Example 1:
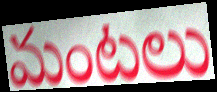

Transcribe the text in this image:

మంటలు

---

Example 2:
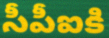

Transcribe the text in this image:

సీపీఐకి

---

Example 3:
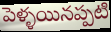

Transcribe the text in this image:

పెళ్ళయినప్పటి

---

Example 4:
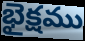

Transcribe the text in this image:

భైక్షము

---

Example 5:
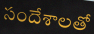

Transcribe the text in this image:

సందేశాలతో